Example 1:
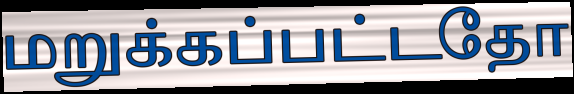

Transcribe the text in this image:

மறுக்கப்பட்டதோ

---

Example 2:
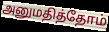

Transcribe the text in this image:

அனுமதித்தோம்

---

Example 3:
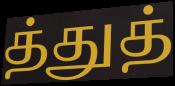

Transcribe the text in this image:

த்துத்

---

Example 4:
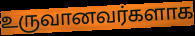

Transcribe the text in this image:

உருவானவர்களாக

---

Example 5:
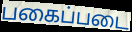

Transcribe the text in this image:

பகைப்படை